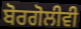
ਬੋਰਗੋਲੀਵੀ